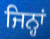
ਜਿਨ੍ਹਾਂ